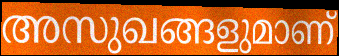
അസുഖങ്ങളുമാണ്